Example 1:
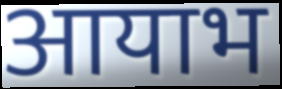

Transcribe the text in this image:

आयाभ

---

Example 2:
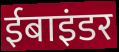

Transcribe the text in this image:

ईबाइंडर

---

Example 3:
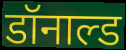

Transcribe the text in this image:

डॉनाल्ड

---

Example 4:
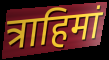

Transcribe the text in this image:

त्राहिमां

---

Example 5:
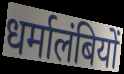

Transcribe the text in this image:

धर्मालंबियों